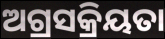
ଅଗ୍ରସକ୍ରିୟତା